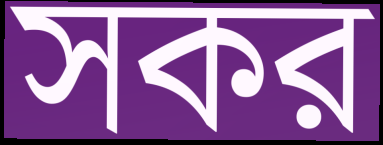
সকর